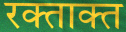
रक्ताक्त